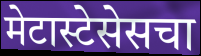
मेटास्टेसेसचा